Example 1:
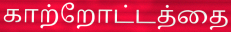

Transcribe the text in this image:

காற்றோட்டத்தை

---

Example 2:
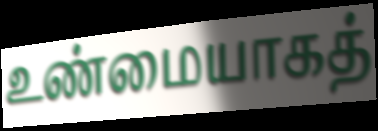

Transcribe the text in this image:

உண்மையாகத்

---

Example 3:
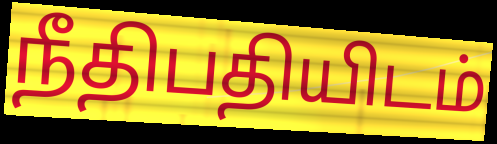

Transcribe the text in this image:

நீதிபதியிடம்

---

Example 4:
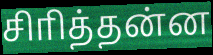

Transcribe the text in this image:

சிரித்தன்ன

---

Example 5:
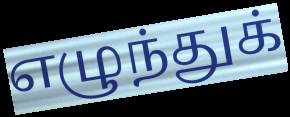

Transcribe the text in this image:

எழுந்துக்